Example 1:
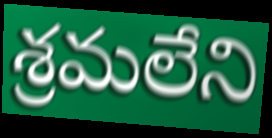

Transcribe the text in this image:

శ్రమలేని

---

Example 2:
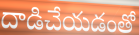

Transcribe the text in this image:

దాడిచేయడంతో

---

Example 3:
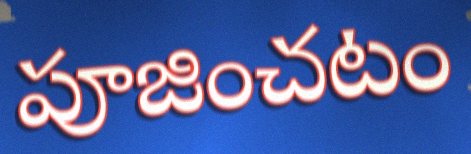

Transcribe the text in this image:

పూజించటం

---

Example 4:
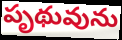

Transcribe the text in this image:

పృథువును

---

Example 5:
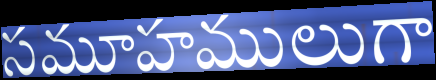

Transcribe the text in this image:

సమూహములుగా